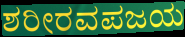
ಶರೀರವಪಜಯ